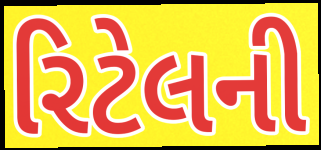
રિટેલની